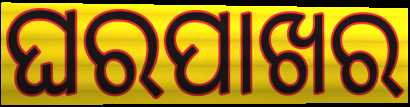
ଘରପାଖର